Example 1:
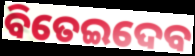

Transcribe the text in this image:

ବିତେଇଦେବ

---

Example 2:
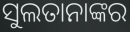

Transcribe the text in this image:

ସୁଲତାନାଙ୍କର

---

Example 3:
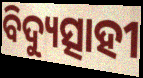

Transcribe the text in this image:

ବିଦ୍ୟୁତ୍ସାହୀ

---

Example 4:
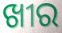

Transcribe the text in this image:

ଖୀର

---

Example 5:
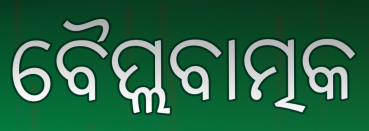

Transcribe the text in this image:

ବୈପ୍ଲବାତ୍ମକ